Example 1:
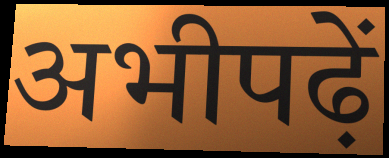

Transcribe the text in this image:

अभीपढ़ें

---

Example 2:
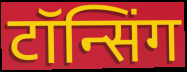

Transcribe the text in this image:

टॉन्सिंग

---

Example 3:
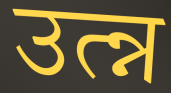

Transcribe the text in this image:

उत्न्न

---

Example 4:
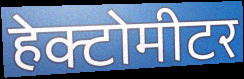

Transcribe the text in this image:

हेक्टोमीटर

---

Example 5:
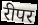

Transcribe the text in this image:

रीपर